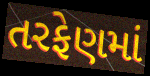
તરફેણમાં